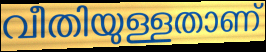
വീതിയുള്ളതാണ്